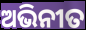
ଅଭିନୀତ